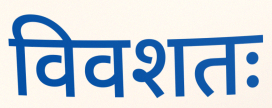
विवशतः